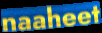
naaheet